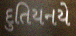
દુતિયનયે